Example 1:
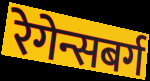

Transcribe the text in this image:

रेगेन्सबर्ग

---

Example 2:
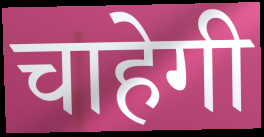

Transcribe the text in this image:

चाहेगी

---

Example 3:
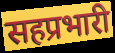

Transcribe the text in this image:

सहप्रभारी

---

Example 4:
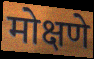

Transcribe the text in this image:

मोक्षणे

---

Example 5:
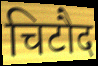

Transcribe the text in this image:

चिटौद